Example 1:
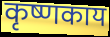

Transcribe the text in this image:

कृष्णकाय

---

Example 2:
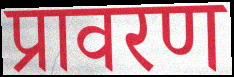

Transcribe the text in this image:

प्रावरण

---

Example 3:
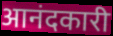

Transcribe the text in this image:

आनंदकारी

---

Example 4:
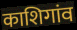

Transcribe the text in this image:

काशिगांव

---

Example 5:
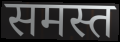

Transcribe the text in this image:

समस्त